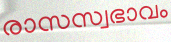
രാസസ്വഭാവം